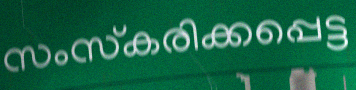
സംസ്‌കരിക്കപ്പെട്ട